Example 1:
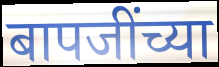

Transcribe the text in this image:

बापजींच्या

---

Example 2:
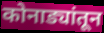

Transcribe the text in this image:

कोनाड्यांतून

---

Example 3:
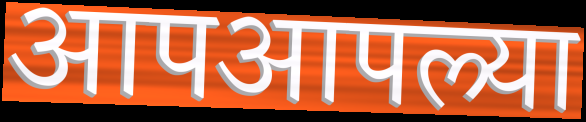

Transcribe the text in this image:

आपआपल्या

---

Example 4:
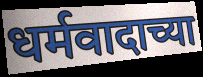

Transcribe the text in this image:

धर्मवादाच्या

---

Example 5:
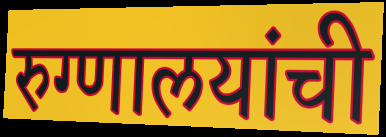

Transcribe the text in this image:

रुग्णालयांची